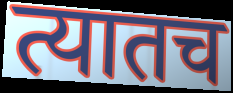
त्यातच